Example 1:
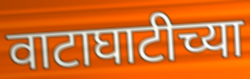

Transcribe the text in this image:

वाटाघाटीच्या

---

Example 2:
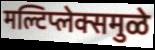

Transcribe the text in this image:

मल्टिप्लेक्समुळे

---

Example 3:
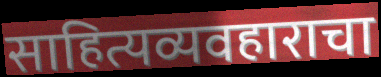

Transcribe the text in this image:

साहित्यव्यवहाराचा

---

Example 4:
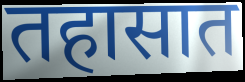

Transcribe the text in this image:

तहासात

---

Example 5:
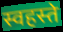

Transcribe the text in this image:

स्वहस्ते